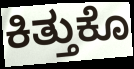
ಕಿತ್ತುಕೊ